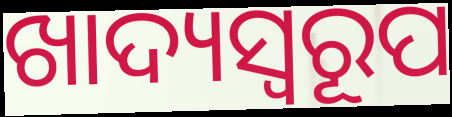
ଖାଦ୍ୟସ୍ୱରୂପ